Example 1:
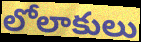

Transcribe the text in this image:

లోలాకులు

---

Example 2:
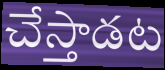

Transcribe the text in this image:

చేస్తాడట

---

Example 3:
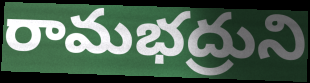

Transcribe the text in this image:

రామభద్రుని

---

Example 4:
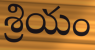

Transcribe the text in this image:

శ్రియం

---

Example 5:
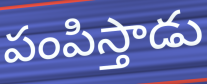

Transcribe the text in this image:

పంపిస్తాడు